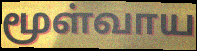
மூள்வாய